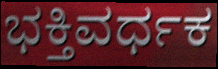
ಭಕ್ತಿವರ್ಧಕ